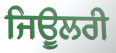
ਜਿਊਲਰੀ